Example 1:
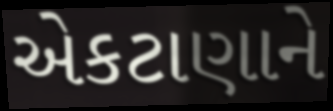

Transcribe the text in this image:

એકટાણાને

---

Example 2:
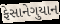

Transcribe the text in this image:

ફેસાનેગુયાન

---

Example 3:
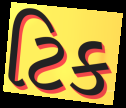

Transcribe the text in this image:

ટિક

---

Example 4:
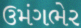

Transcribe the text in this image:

ઉમંગભેર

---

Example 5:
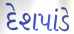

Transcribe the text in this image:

દેશપાંડે